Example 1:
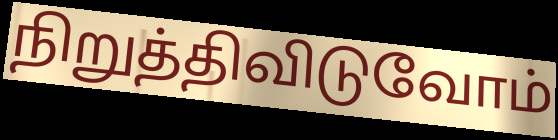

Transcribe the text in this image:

நிறுத்திவிடுவோம்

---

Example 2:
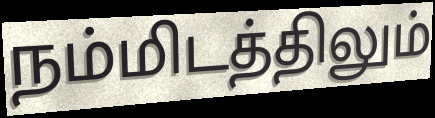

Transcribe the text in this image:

நம்மிடத்திலும்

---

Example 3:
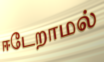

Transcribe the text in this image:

ஈடேறாமல்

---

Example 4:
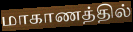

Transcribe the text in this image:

மாகாணத்தில்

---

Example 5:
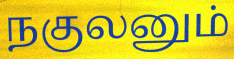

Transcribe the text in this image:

நகுலனும்